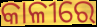
କାଳୀରେ